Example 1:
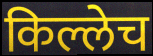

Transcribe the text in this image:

किल्लेच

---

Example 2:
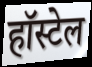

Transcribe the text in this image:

हॉस्टेल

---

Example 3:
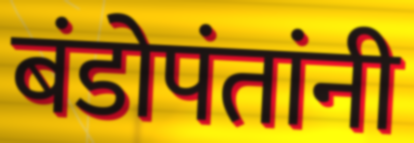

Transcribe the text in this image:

बंडोपंतांनी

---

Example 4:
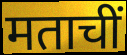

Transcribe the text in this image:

मताचीं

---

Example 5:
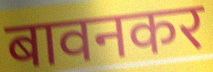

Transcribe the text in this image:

बावनकर